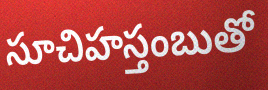
సూచిహస్తంబుతో